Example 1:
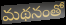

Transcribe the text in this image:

మథనంతో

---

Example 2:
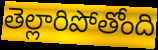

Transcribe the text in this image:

తెల్లారిపోతోంది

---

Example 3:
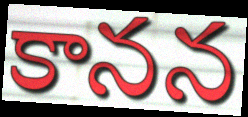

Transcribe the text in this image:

కానన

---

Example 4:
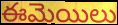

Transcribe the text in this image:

ఈమెయిలు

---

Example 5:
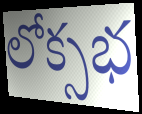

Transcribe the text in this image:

లోక్సభ